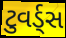
ટુવર્ડ્સ